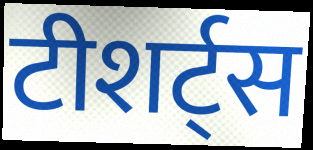
टीशर्ट्स